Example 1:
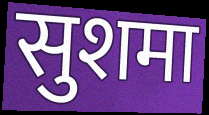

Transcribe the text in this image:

सुशमा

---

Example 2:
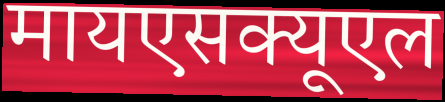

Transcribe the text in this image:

मायएसक्यूएल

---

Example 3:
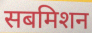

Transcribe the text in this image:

सबमिशन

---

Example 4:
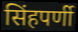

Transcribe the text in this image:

सिंहपर्णी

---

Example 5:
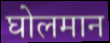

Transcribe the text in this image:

घोलमान